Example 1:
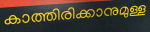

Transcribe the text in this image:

കാത്തിരിക്കാനുമുള്ള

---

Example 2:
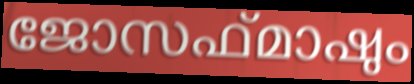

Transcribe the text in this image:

ജോസഫ്മാഷും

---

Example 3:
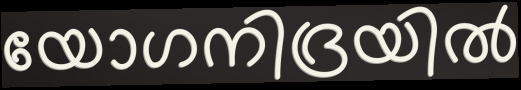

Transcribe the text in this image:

യോഗനിദ്രയിൽ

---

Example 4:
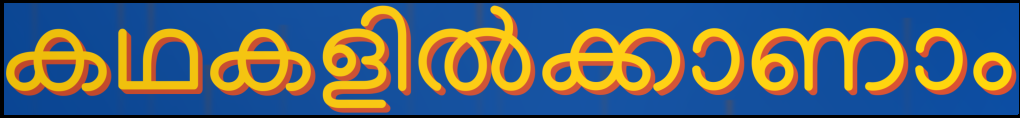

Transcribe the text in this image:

കഥകളിൽക്കാണാം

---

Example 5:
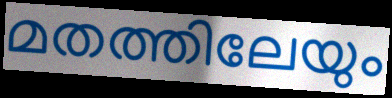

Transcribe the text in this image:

മതത്തിലേയും